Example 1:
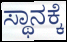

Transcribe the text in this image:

ಸ್ಥಾನಕ್ಕೆ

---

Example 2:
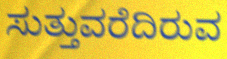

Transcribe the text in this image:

ಸುತ್ತುವರೆದಿರುವ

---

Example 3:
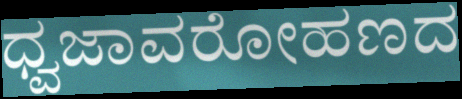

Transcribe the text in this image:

ಧ್ವಜಾವರೋಹಣದ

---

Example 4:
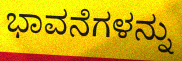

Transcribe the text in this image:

ಭಾವನೆಗಳನ್ನು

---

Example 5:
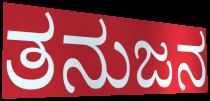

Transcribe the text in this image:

ತನುಜನ